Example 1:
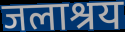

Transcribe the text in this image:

जलाश्रय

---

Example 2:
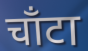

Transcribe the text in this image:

चाँटा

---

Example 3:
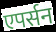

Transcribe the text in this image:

एपर्सन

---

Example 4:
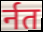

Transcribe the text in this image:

र्नत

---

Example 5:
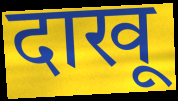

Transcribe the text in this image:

दाखू